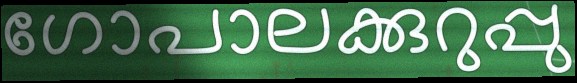
ഗോപാലക്കുറുപ്പു